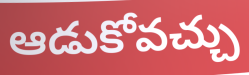
ఆడుకోవచ్చు